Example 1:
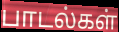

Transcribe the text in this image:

பாடல்கள்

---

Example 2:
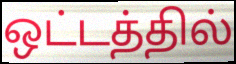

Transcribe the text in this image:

ஒட்டத்தில்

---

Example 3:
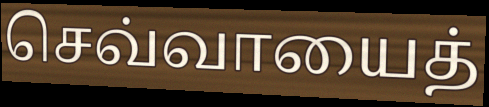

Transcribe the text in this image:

செவ்வாயைத்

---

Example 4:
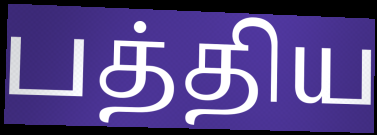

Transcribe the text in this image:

பத்திய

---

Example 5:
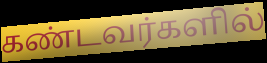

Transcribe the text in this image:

கண்டவர்களில்